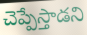
చెప్పేస్తాడని